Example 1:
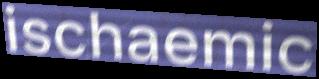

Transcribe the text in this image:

ischaemic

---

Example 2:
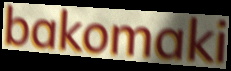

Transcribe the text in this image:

bakomaki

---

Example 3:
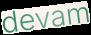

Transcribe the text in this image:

devam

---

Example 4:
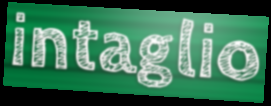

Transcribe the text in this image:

intaglio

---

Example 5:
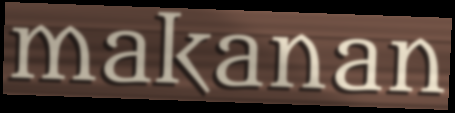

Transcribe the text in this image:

makanan